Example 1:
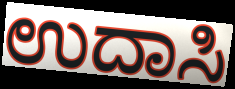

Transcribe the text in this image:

ಉದಾಸಿ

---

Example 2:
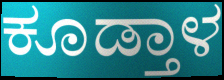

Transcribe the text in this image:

ಕೂಡ್ತಾಳ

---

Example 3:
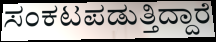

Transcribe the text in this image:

ಸಂಕಟಪಡುತ್ತಿದ್ದಾರೆ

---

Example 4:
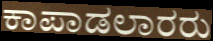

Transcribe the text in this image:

ಕಾಪಾಡಲಾರರು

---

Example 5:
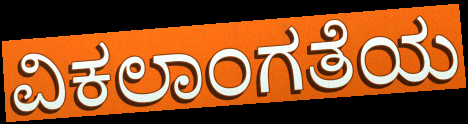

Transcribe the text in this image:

ವಿಕಲಾಂಗತೆಯ